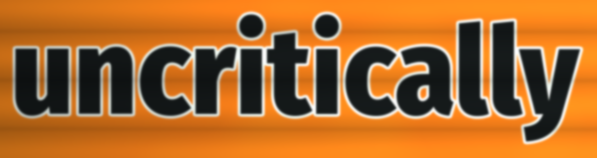
uncritically